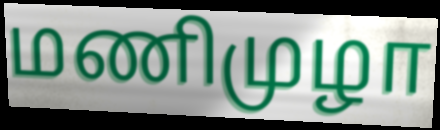
மணிமுழா